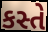
કસ્તે